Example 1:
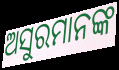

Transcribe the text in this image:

ଅସୁରମାନଙ୍କ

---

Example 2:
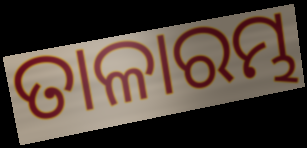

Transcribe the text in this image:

ତାଳାରମ୍ଭ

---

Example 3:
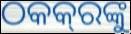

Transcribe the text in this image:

ଠକକ୍‌ରଙ୍କୁ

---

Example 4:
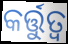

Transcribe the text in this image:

କର୍ତ୍ତୁତ୍ୱ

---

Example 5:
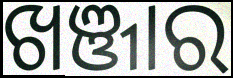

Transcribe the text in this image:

ଖଞ୍ଜାର